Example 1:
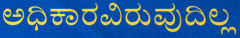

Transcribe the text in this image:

ಅಧಿಕಾರವಿರುವುದಿಲ್ಲ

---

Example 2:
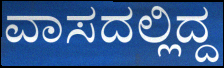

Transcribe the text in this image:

ವಾಸದಲ್ಲಿದ್ದ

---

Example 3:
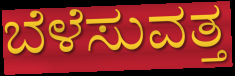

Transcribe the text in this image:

ಬೆಳೆಸುವತ್ತ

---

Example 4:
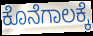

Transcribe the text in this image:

ಕೊನೆಗಾಲಕ್ಕೆ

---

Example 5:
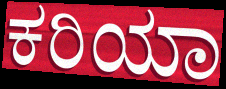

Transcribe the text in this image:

ಕರಿಯಾ